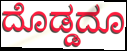
ದೊಡ್ಡದೂ